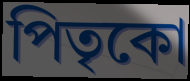
পিতৃকো